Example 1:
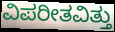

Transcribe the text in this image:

ವಿಪರೀತವಿತ್ತು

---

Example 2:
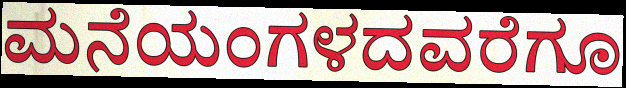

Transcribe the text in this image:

ಮನೆಯಂಗಳದವರೆಗೂ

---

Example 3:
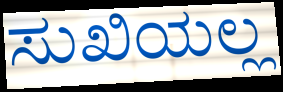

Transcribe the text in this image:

ಸುಖಿಯಲ್ಲ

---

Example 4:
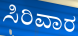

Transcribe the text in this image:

ಸಿರಿವಾರ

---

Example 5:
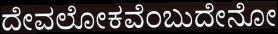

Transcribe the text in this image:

ದೇವಲೋಕವೆಂಬುದೇನೋ